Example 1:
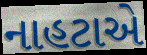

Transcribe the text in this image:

નાહટાએ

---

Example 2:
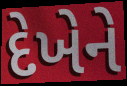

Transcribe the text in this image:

દેખેને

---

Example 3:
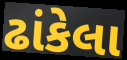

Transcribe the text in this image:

ઢાંકેલા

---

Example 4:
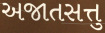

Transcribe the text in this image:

અજાતસત્તુ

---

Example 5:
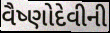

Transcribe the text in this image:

વૈષ્ણોદેવીની